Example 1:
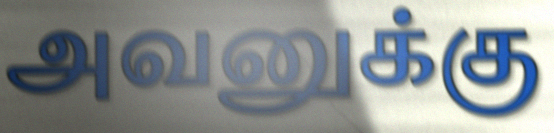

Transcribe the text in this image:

அவனுக்கு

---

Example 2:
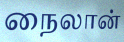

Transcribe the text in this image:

நைலான்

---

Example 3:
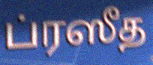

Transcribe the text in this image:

ப்ரஸீத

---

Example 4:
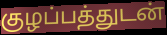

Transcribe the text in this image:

குழப்பத்துடன்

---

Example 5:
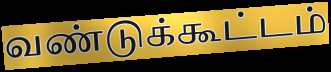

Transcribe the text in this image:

வண்டுக்கூட்டம்